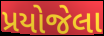
પ્રયોજેલા